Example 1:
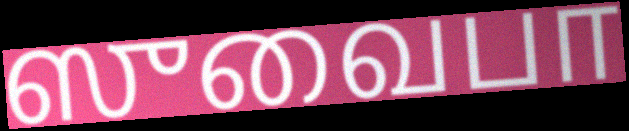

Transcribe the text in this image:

ஸுவைபா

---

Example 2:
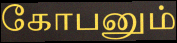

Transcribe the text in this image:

கோபனும்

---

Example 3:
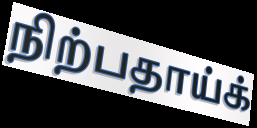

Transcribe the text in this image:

நிற்பதாய்க்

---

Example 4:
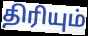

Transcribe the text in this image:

திரியும்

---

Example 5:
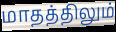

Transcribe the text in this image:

மாதத்திலும்